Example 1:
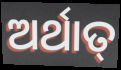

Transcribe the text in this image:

ଅର୍ଥାତ୍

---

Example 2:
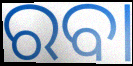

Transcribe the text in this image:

ରବା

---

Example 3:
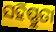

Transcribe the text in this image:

ସହିଷ୍ଣୁତା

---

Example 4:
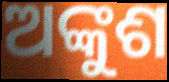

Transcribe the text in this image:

ଅଙ୍କୁଶ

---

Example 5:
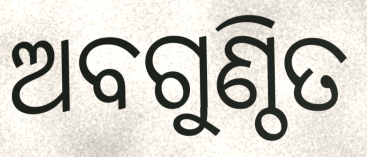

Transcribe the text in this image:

ଅବଗୁଣ୍ଠିତ